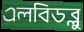
এলবিডব্লু